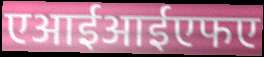
एआईआईएफए